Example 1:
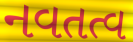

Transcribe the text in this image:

નવતત્વ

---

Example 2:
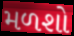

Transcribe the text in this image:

મળશો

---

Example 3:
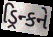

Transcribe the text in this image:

ડ્રિન્કને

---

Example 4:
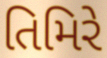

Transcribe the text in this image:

તિમિરે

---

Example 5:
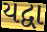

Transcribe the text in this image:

યદ્વા